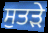
ਸੁਤੜੇ